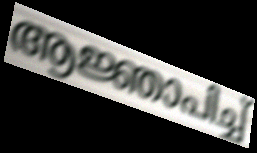
ആജ്ഞാപിച്ച്